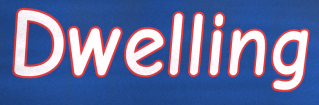
Dwelling